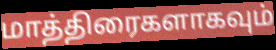
மாத்திரைகளாகவும்